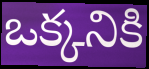
ఒక్కనికి